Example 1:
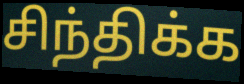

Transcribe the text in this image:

சிந்திக்க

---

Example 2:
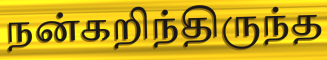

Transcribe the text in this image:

நன்கறிந்திருந்த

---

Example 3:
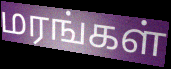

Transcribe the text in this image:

மரங்கள்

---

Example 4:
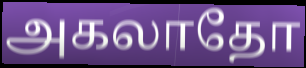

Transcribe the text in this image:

அகலாதோ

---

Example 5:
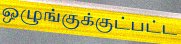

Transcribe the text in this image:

ஒழுங்குக்குட்பட்ட